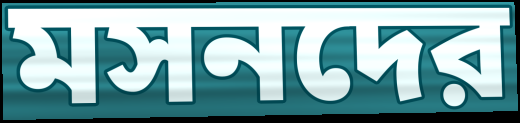
মসনদের